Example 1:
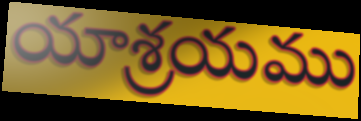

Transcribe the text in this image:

యాశ్రయము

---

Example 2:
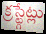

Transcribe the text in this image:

క్రస్ట్గేట్లు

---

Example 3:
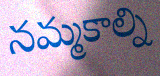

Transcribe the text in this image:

నమ్మకాల్ని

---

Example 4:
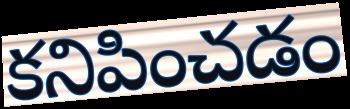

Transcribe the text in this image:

కనిపించడం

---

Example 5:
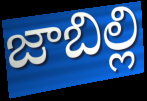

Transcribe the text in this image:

జాబిల్లి